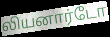
லியனார்டோ